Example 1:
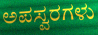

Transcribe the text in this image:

ಅಪಸ್ವರಗಳು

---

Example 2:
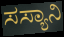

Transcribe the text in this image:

ಸಸ್ಯಾನಿ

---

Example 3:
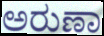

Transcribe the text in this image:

ಅರುಣಾ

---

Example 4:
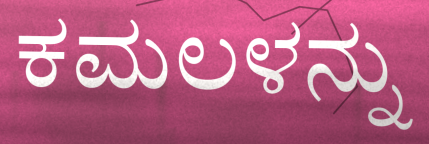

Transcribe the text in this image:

ಕಮಲಳನ್ನು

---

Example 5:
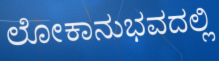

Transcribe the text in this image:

ಲೋಕಾನುಭವದಲ್ಲಿ